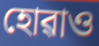
হোৱাও